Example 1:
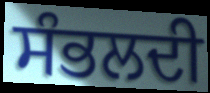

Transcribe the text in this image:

ਸੰਭਲਦੀ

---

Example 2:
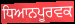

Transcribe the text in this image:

ਧਿਆਨਪੂਰਵਕ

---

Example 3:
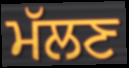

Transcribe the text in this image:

ਮੱਲਣ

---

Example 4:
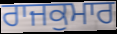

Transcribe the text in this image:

ਰਾਜਕੁਮਾਰ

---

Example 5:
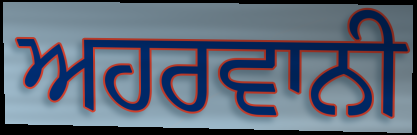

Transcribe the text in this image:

ਅਹਰਵਾਨੀ